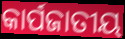
କାର୍ପଜାତୀୟ